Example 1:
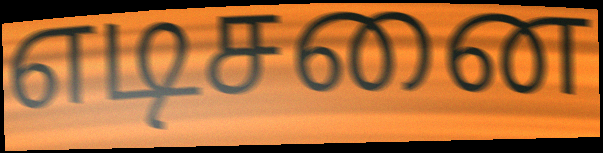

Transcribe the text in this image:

எடிசனை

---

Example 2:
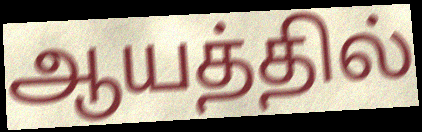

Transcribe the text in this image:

ஆயத்தில்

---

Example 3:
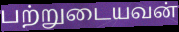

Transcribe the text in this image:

பற்றுடையவன்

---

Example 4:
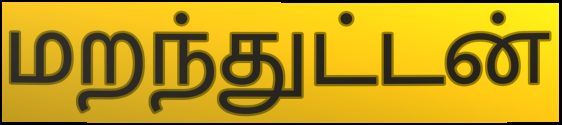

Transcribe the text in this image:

மறந்துட்டன்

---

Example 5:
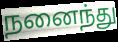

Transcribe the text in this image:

நனைந்து